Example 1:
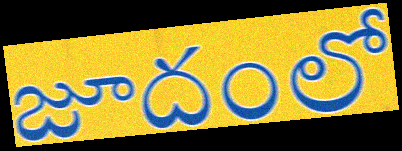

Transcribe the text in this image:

జూదంలో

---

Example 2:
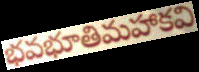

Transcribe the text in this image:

భవభూతిమహాకవి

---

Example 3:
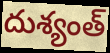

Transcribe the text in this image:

దుశ్యంత్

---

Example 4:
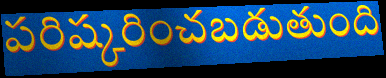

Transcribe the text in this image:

పరిష్కరించబడుతుంది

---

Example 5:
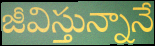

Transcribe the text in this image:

జీవిస్తున్నానే